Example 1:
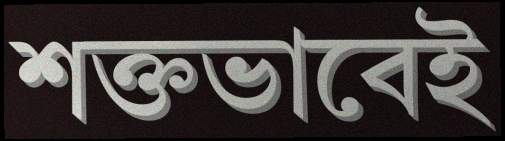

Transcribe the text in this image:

শক্তভাবেই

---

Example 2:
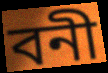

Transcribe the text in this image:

বনী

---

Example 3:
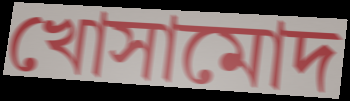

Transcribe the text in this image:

খোসামোদ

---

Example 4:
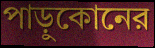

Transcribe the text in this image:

পাড়ুকোনের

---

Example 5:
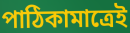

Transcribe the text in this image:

পাঠিকামাত্রেই